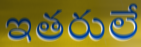
ఇతరులే